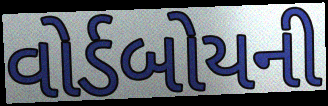
વોર્ડબોયની